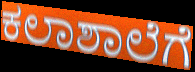
ಕಲಾಶಾಲೆಗೆ